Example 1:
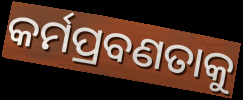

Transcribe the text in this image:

କର୍ମପ୍ରବଣତାକୁ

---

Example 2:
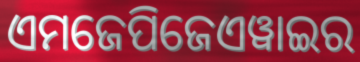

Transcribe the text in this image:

ଏମଜେପିଜେଏୱାଇର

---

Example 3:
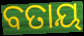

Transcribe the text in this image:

ବତାୟ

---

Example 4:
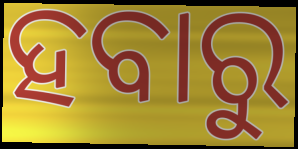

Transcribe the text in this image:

ହବାରୁ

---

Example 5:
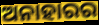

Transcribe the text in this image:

ଅନାହାରର